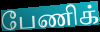
பேணிக்